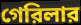
গেরিলার